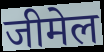
जीमेल